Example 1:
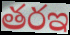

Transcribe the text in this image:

తరఇ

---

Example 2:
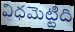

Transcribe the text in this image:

విధమెట్టిది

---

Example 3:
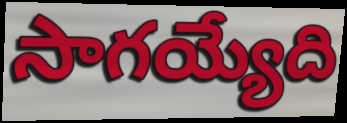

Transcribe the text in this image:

సాగయ్యేది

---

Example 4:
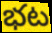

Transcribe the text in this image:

భట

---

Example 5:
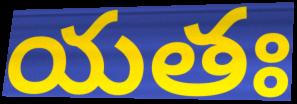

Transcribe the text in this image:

యతః